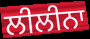
ਲੀਲੀਨਾ